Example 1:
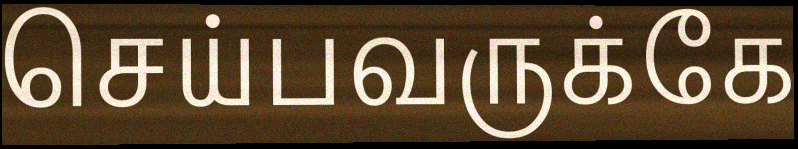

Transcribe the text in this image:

செய்பவருக்கே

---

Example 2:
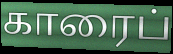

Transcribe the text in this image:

காரைப்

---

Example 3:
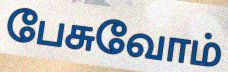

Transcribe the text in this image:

பேசுவோம்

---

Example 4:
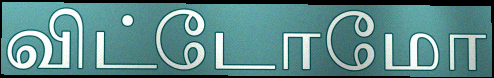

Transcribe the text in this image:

விட்டோமோ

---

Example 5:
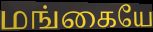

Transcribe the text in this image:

மங்கையே